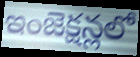
ఇంజెక్షన్లలో